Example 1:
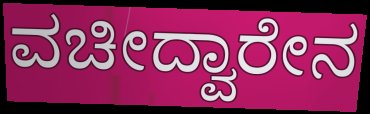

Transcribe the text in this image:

ವಚೀದ್ವಾರೇನ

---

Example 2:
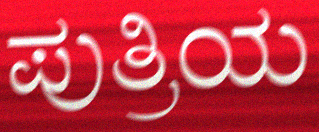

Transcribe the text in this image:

ಪುತ್ರಿಯ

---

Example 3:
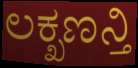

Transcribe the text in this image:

ಲಕ್ಖಣನ್ತಿ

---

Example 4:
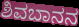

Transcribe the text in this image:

ಶಿವಬಾನನ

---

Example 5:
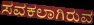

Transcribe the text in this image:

ಸವಕಲಾಗಿರುವ